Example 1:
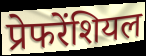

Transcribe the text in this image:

प्रेफरेंशियल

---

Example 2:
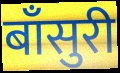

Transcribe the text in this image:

बाँसुरी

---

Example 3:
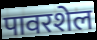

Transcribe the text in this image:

पावरशेल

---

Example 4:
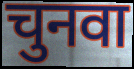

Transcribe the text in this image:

चुनवा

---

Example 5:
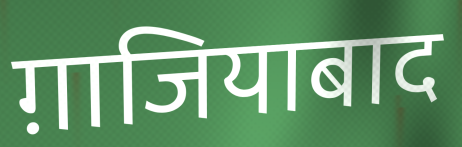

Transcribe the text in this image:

ग़ाजियाबाद